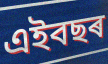
এইবছৰ